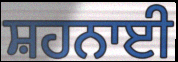
ਸ਼ਹਨਾਈ